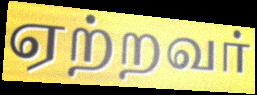
ஏற்றவர்